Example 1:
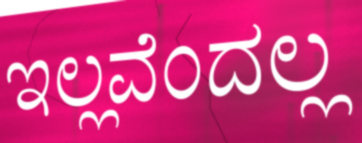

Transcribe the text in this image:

ಇಲ್ಲವೆಂದಲ್ಲ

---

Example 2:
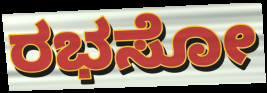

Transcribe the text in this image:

ರಭಸೋ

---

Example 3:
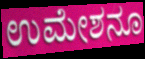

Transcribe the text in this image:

ಉಮೇಶನೂ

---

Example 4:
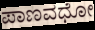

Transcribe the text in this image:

ಪಾಣವಧೋ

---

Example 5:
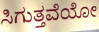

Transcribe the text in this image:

ಸಿಗುತ್ತವೆಯೋ